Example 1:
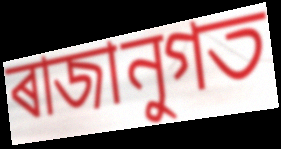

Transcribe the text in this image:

ৰাজানুগত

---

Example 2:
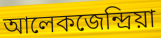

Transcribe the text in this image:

আলেকজেন্দ্ৰিয়া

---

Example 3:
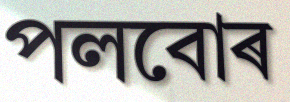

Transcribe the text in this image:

পলবোৰ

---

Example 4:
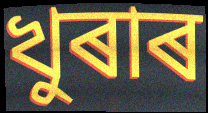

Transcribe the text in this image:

খুৰাৰ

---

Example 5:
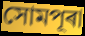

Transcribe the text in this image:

সোমপূৰা